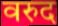
वरुद